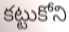
కట్టుకోని